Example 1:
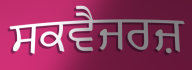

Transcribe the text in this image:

ਸਕਵੈਜਰਜ਼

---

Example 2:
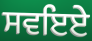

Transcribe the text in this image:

ਸਵਇਏ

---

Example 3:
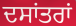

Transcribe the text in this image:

ਦਸਾਂਤਰਾਂ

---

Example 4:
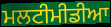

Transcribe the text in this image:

ਮਲਟੀਮੀਡੀਆ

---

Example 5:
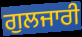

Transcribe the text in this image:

ਗੁਲਜਾਰੀ